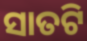
ସାତଟି